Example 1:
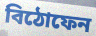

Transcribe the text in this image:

বিঠোফেন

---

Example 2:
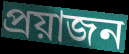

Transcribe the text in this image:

প্রয়াজন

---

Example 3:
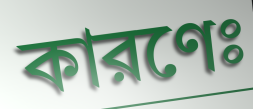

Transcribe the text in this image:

কারণেঃ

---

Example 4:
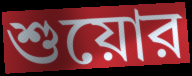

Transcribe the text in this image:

শুয়োর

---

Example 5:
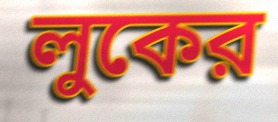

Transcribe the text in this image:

লুকের